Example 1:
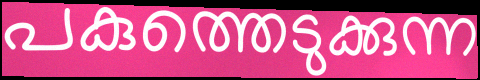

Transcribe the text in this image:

പകുത്തെടുക്കുന്ന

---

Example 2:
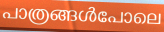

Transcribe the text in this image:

പാത്രങ്ങൾപോലെ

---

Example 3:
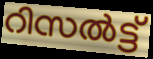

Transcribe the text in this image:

റിസൽട്ട്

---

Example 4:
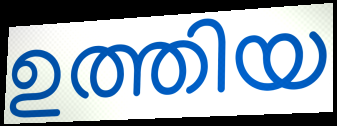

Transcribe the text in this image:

ഉത്തിയ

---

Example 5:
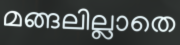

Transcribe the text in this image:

മങ്ങലില്ലാതെ